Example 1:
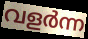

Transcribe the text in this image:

വളർന്ന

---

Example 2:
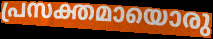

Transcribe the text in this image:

പ്രസക്തമായൊരു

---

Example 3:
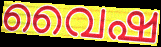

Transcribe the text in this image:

വൈഷ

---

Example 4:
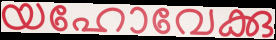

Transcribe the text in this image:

യഹോവേക്കു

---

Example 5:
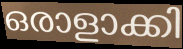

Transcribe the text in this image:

ഒരാളാക്കി